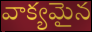
వాక్యమైన